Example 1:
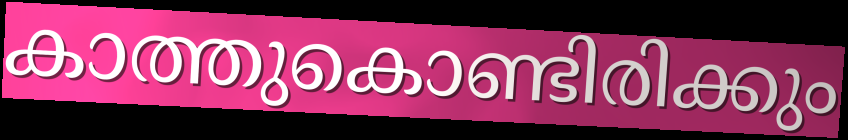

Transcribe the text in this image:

കാത്തുകൊണ്ടിരിക്കും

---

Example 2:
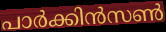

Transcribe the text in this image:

പാർക്കിൻസൺ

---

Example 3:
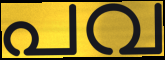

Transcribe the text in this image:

പവ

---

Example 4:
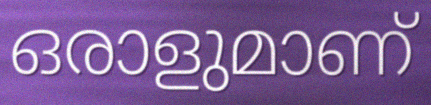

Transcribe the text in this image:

ഒരാളുമാണ്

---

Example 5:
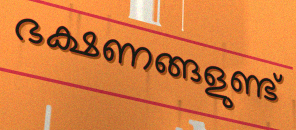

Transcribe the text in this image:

ഭക്ഷണങ്ങളുണ്ട്